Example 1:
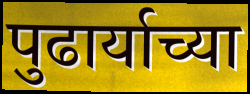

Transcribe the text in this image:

पुढार्याच्या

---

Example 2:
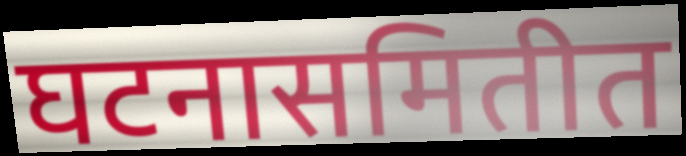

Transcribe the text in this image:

घटनासमितीत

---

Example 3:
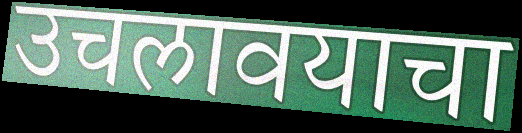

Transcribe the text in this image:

उचलावयाचा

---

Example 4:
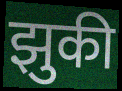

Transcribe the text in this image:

झुकी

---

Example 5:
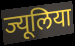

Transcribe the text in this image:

ज्यूलिया